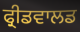
ਫ੍ਰੀਡਵਾਲਡ